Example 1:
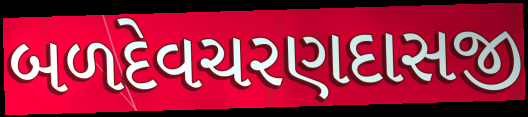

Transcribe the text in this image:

બળદેવચરણદાસજી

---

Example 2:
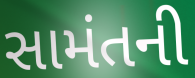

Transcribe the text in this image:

સામંતની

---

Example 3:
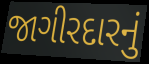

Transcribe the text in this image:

જાગીરદારનું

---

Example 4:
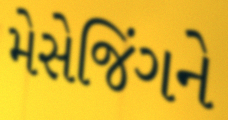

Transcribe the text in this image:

મેસેજિંગને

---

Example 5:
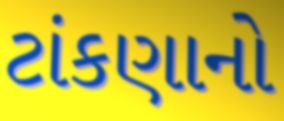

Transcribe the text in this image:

ટાંકણાનો